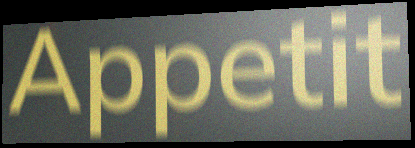
Appetit